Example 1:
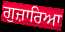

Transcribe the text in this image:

ਗੁਜ਼ਾਰਿਆ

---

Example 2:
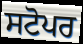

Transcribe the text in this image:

ਸਟੋਪਰ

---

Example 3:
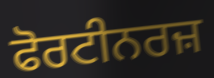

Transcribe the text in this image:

ਫੋਰਟੀਨਰਜ਼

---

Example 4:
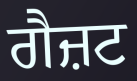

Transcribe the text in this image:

ਗੈਜ਼ਟ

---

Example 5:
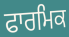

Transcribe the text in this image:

ਫਾਰਮਿਕ